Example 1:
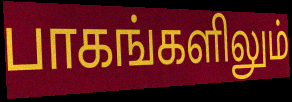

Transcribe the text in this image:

பாகங்களிலும்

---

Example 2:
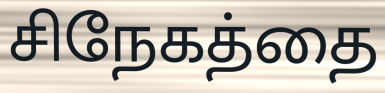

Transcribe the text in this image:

சிநேகத்தை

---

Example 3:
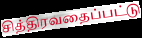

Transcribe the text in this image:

சித்திரவதைப்பட்டு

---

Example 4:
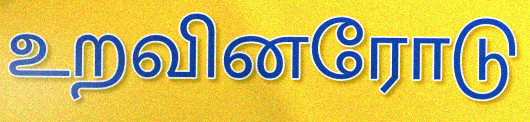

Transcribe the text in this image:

உறவினரோடு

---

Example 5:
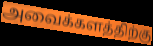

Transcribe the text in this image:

அவைக்களத்திற்கு